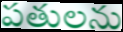
పతులను